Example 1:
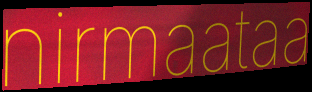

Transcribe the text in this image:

nirmaataa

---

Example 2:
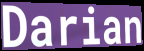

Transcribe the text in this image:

Darian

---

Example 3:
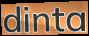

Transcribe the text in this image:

dinta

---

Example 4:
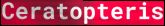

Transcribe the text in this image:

Ceratopteris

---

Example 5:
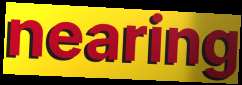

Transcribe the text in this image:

nearing